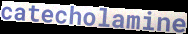
catecholamine